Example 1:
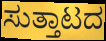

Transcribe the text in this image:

ಸುತ್ತಾಟದ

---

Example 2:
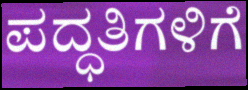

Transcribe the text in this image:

ಪದ್ಧತಿಗಳಿಗೆ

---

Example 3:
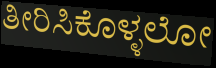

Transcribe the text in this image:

ತೀರಿಸಿಕೊಳ್ಳಲೋ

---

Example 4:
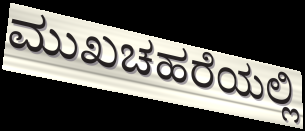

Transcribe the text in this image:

ಮುಖಚಹರೆಯಲ್ಲಿ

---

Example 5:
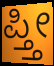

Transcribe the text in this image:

ಪ್ತ್ತೀ